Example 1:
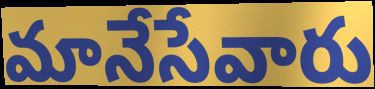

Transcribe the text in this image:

మానేసేవారు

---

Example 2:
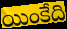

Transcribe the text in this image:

యింకేది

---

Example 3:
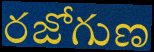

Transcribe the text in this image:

రజోగుణ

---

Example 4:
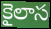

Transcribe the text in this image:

కైలాస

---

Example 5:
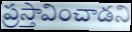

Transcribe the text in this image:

ప్రస్తావించాడని